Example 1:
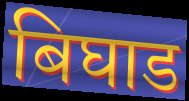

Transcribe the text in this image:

बिघाड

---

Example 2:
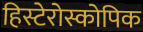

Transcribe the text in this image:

हिस्टेरोस्कोपिक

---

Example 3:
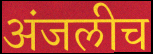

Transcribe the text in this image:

अंजलीच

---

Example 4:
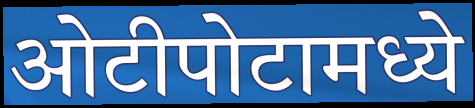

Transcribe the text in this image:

ओटीपोटामध्ये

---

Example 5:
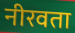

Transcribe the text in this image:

नीरवता